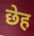
छेह